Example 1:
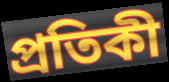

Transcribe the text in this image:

প্ৰতিকী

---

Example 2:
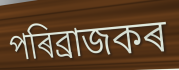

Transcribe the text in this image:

পৰিব্ৰাজকৰ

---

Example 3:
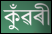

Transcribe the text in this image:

কুঁৱৰী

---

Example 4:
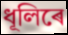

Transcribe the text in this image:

ধূলিৰে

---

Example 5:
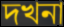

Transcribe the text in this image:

দখনা